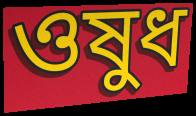
ওষুধ